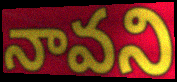
నావని